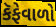
કૅફેવાળો